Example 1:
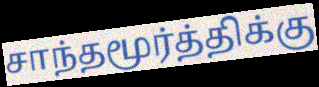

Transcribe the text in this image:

சாந்தமூர்த்திக்கு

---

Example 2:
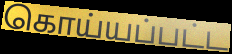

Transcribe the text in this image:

கொய்யப்பட்ட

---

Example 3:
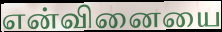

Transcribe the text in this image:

என்வினையை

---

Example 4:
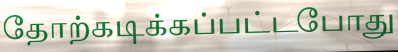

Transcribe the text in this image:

தோற்கடிக்கப்பட்டபோது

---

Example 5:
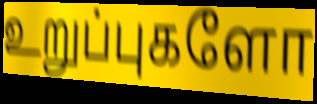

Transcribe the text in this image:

உறுப்புகளோ